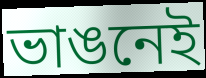
ভাঙনেই